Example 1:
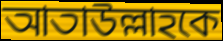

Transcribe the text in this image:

আতাউল্লাহকে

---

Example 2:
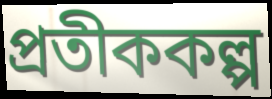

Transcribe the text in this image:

প্রতীককল্প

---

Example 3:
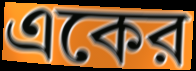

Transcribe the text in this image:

একের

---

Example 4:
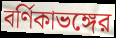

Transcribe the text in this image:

বর্ণিকাভঙ্গের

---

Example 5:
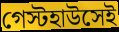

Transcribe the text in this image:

গেস্টহাউসেই